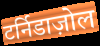
टर्निडाज़ोल